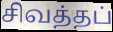
சிவத்தப்